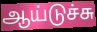
ஆய்டுச்சு